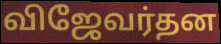
விஜேவர்தன